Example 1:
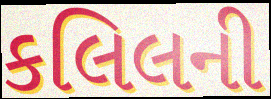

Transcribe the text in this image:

કલિલની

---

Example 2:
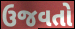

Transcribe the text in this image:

ઉજવતો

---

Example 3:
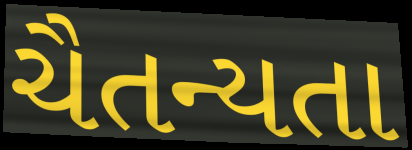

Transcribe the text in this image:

ચૈતન્યતા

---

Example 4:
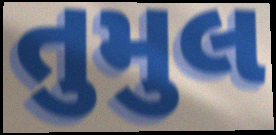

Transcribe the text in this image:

તુમુલ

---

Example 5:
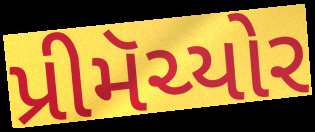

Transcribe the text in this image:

પ્રીમૅચ્યોર